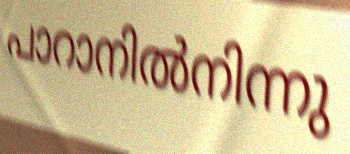
പാറാനിൽനിന്നു